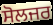
ਸੋਲਜਰ